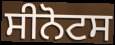
ਸੀਨੋਟਸ